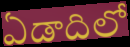
ఏడాదిలో